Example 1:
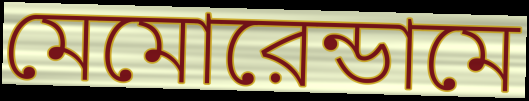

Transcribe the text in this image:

মেমোরেন্ডামে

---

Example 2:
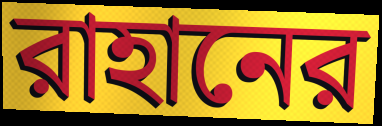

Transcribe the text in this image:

রাহানের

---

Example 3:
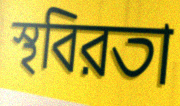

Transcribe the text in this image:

স্থবিরতা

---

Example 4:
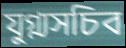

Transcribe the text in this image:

যুগ্মসচিব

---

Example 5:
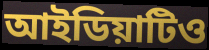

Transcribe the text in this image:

আইডিয়াটিও